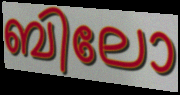
ബിലോ